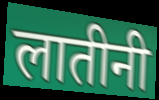
लातीनी